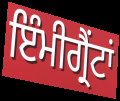
ਇੰਮੀਗ੍ਰੈਂਟਾਂ